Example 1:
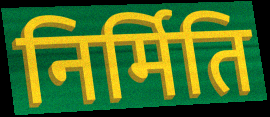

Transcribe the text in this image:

निर्मिति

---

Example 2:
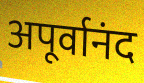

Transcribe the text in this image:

अपूर्वानंद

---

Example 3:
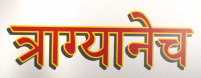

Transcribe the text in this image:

त्राग्यानेच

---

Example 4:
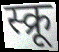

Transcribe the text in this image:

स्क्रू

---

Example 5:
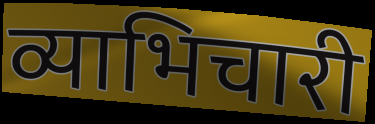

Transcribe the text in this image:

व्याभिचारी